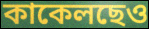
কাকেলছেও